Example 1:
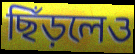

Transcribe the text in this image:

ছিঁড়লেও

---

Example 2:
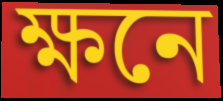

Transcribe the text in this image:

ক্ষনে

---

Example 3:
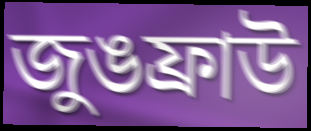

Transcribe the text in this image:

জুঙফ্রাউ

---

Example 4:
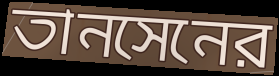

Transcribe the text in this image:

তানসেনের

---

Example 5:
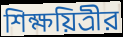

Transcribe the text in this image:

শিক্ষয়িত্রীর